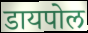
डायपोल